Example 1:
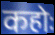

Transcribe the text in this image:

कहोः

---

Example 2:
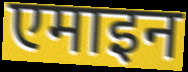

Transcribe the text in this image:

एमाइन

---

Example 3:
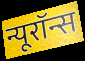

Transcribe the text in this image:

न्यूरॉन्स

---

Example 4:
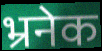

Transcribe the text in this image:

भ्रनेक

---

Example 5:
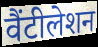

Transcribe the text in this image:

वैंटीलेशन